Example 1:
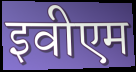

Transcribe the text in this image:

इवीएम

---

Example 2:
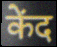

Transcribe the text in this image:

केंद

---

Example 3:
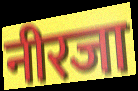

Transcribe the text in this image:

नीरजा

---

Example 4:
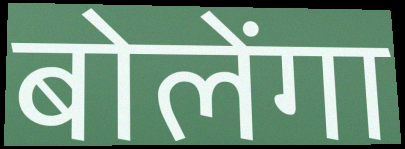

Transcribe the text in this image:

बोलेंगा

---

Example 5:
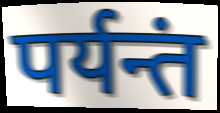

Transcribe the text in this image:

पर्यन्तं